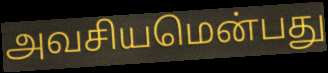
அவசியமென்பது